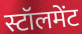
स्टॉलमेंट